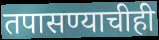
तपासण्याचीही